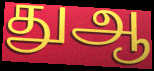
துஆ